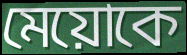
মেয়োকে